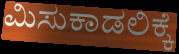
ಮಿಸುಕಾಡಲಿಕ್ಕೆ